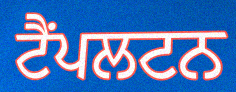
ਟੈਂਪਲਟਨ